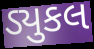
ડ્યુકલ